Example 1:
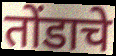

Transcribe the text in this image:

तोंडाचे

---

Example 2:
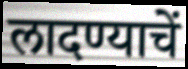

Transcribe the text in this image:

लादण्याचें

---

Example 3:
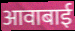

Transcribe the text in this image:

आवाबाई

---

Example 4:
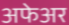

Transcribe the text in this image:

अफेअर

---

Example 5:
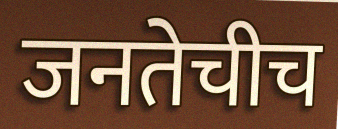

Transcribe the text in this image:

जनतेचीच